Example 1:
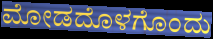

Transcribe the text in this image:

ಮೋಡದೊಳಗೊಂದು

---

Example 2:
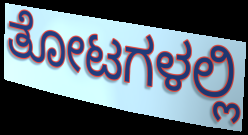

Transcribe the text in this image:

ತೋಟಗಳಲ್ಲಿ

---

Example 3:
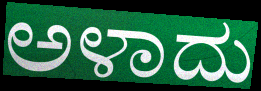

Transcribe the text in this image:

ಅಳಾದು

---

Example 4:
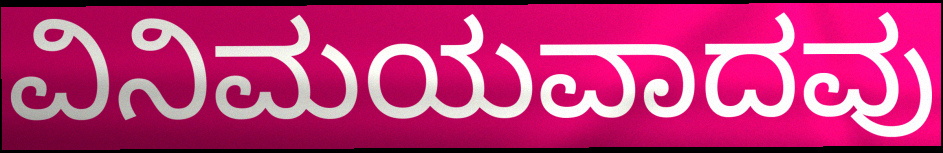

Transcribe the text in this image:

ವಿನಿಮಯವಾದವು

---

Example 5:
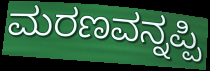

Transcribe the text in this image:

ಮರಣವನ್ನಪ್ಪಿ